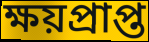
ক্ষয়প্রাপ্ত